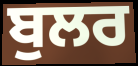
ਬੁਲਰ